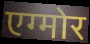
एग्मोर